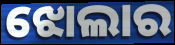
ଝୋଲାର